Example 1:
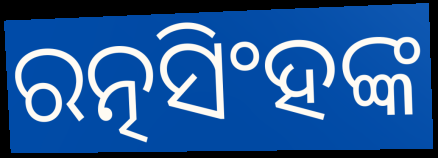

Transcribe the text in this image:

ରତ୍ନସିଂହଙ୍କ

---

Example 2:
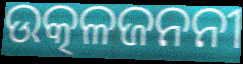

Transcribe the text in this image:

ଉତ୍କଳଜନନୀ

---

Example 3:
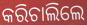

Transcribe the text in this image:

କରିଚାଲିଲେ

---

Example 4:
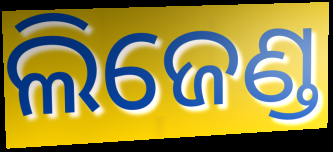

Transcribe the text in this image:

ଲିଜେଣ୍ଡ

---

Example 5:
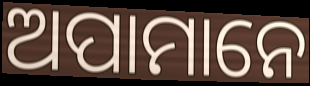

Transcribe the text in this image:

ଅପାମାନେ